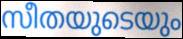
സീതയുടെയും